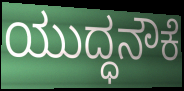
ಯುದ್ಧನೌಕೆ